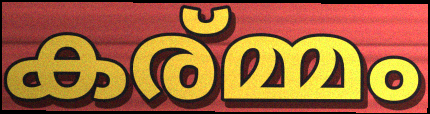
കര്മ്മം